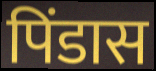
पिंडास